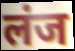
लंज